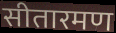
सीतारमण